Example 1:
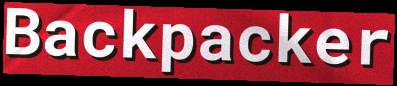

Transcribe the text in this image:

Backpacker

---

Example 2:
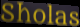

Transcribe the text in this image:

Sholas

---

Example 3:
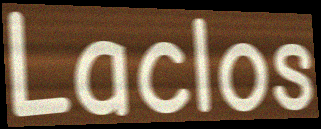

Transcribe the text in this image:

Laclos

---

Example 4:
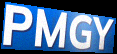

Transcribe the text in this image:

PMGY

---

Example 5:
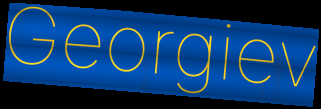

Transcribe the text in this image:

Georgiev